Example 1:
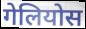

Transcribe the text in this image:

गेलियोस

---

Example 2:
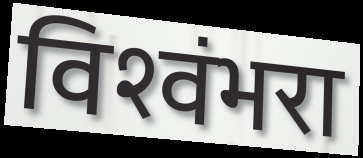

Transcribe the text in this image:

विश्वंभरा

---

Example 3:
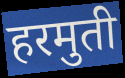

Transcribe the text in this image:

हरमुती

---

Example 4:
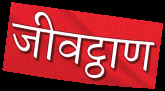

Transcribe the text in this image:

जीवट्ठाण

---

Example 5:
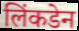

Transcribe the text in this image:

लिंकडेन